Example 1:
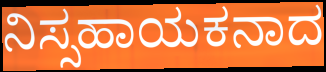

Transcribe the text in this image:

ನಿಸ್ಸಹಾಯಕನಾದ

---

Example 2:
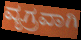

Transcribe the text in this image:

ವ್ಯಗ್ರವಾಗಿ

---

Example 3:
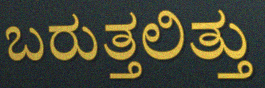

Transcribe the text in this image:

ಬರುತ್ತಲಿತ್ತು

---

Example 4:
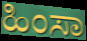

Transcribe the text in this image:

ಹಿಂಸಾ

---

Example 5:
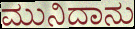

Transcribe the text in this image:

ಮುನಿದಾನು